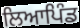
ਲਿਆਪਿੰਡ